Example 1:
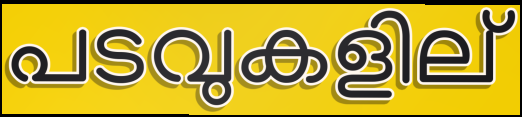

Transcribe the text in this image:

പടവുകളില്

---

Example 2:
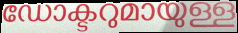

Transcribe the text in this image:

ഡോക്ടറുമായുള്ള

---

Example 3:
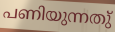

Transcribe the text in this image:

പണിയുന്നതു്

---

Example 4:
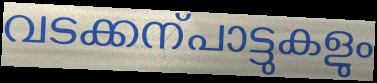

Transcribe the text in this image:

വടക്കന്പാട്ടുകളും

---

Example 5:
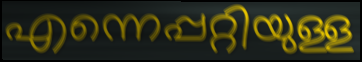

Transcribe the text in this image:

എന്നെപ്പറ്റിയുള്ള